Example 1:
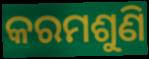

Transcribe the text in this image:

କରମଶୁଣି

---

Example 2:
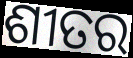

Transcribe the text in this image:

ଶୀତର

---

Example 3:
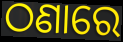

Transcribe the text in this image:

ଠଣାରେ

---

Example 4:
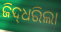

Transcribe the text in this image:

ଜିଦ୍‌ଧରିଲା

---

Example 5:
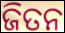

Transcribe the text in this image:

ଜିତନ